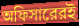
অফিসারেরই